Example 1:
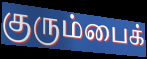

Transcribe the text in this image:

குரும்பைக்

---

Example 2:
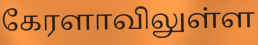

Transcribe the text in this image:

கேரளாவிலுள்ள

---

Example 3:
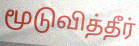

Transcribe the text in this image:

மூடுவித்தீர்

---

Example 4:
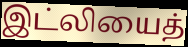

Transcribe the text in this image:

இட்லியைத்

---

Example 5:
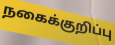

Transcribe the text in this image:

நகைக்குறிப்பு